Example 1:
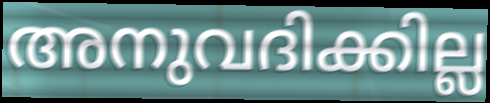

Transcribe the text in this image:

അനുവദിക്കില്ല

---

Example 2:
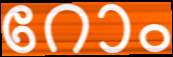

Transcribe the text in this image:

റോം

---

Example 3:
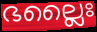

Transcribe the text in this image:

ഭല്ലൈഃ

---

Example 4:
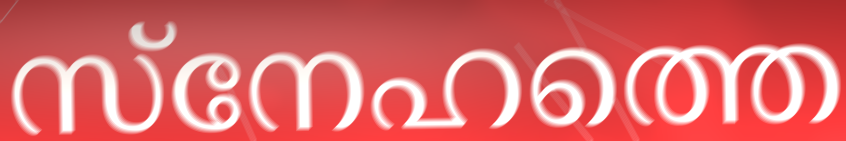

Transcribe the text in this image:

സ്നേഹത്തെ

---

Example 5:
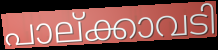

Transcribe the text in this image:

പാല്ക്കാവടി